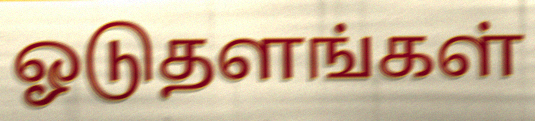
ஓடுதளங்கள்